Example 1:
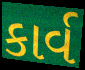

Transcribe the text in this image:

કાર્વ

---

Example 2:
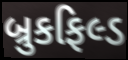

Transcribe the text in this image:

બ્રુકફિલ્ડ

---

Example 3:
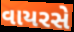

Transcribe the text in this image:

વાયરસે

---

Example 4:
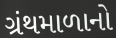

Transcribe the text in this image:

ગ્રંથમાળાનો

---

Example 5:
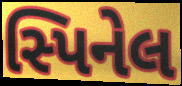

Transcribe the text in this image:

સ્પિનેલ